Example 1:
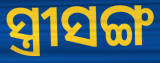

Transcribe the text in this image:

ସ୍ତ୍ରୀସଙ୍ଗ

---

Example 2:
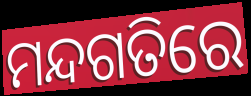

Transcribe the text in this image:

ମନ୍ଦଗତିରେ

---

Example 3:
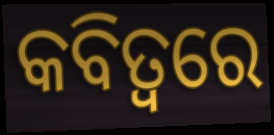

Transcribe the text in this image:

କବିତ୍ୱରେ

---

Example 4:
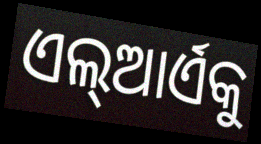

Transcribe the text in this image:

ଏଲ୍ଆର୍ଏକୁ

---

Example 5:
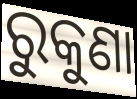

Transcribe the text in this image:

ରୁକୁଣା